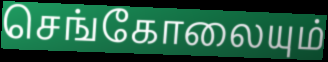
செங்கோலையும்